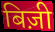
बिज़ी